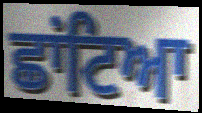
ਛਾਂਟਿਆ